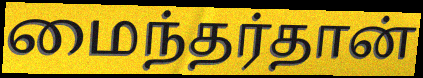
மைந்தர்தான்